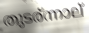
തുടര്ന്നാല്